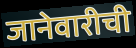
जानेवारीची